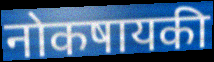
नोकषायकी